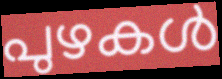
പുഴകൾ